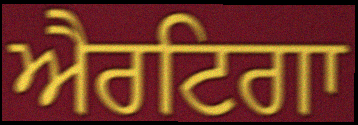
ਐਰਟਿਗਾ